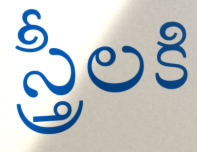
స్త్రీలకి